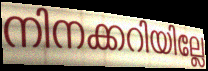
നിനക്കറിയില്ലേ